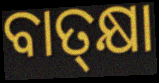
ବାତ୍କ୍ଷା